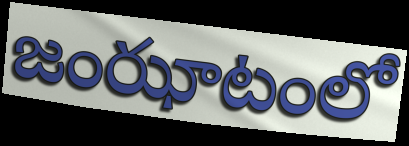
జంఝాటంలో